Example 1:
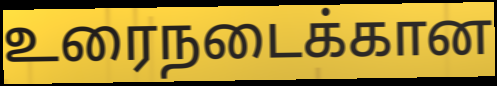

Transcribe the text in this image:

உரைநடைக்கான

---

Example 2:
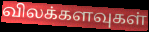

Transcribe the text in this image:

விலக்களவுகள்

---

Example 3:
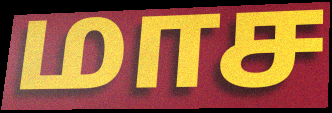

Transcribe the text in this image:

மாச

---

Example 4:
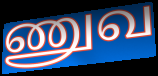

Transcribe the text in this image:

ணுவ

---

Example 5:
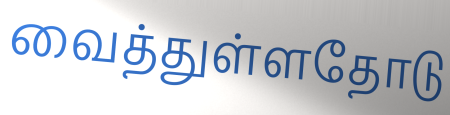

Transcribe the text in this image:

வைத்துள்ளதோடு